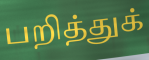
பறித்துக்